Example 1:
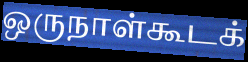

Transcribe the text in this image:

ஒருநாள்கூடக்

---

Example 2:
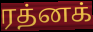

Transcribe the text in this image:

ரத்னக்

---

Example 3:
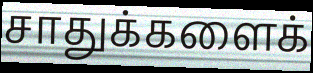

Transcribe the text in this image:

சாதுக்களைக்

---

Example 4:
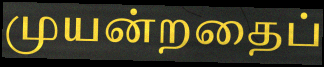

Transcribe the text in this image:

முயன்றதைப்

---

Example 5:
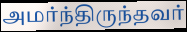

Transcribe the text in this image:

அமர்ந்திருந்தவர்